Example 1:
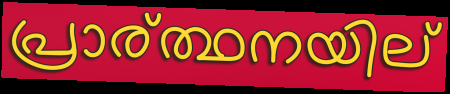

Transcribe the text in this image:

പ്രാര്ത്ഥനയില്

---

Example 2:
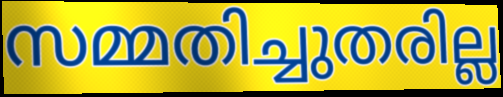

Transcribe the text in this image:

സമ്മതിച്ചുതരില്ല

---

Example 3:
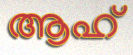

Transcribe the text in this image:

ആഹ്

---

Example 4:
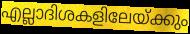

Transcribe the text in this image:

എല്ലാദിശകളിലേയ്ക്കും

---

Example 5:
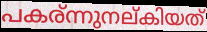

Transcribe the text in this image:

പകര്ന്നുനല്കിയത്